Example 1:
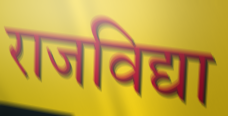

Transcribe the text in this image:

राजविद्या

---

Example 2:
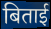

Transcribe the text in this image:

बिताई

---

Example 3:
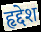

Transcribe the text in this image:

हृद्देश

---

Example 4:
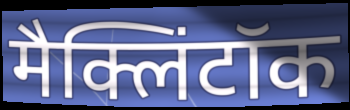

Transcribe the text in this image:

मैक्लिंटॉक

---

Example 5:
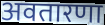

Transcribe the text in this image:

अवतारणा